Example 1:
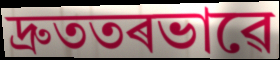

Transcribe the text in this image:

দ্ৰুততৰভাৱে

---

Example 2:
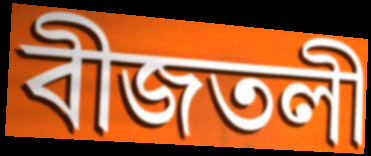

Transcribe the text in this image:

বীজতলী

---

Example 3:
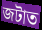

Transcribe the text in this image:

জটাত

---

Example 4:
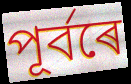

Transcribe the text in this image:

পূৰ্বৰে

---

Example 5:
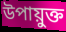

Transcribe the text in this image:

উপায়ুক্ত